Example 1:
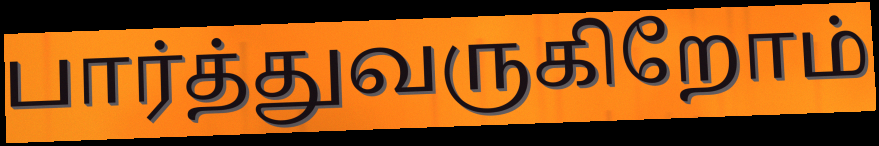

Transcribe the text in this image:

பார்த்துவருகிறோம்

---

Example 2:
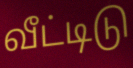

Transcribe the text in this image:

வீட்டிடு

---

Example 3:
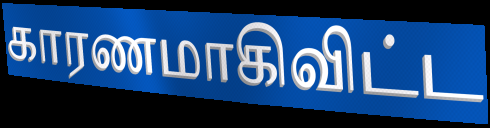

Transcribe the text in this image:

காரணமாகிவிட்ட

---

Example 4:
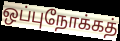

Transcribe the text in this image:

ஒப்புநோக்கத்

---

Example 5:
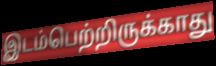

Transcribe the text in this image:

இடம்பெற்றிருக்காது